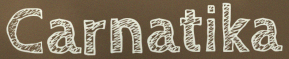
Carnatika